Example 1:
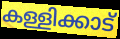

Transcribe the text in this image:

കള്ളിക്കാട്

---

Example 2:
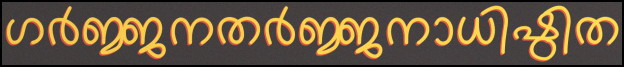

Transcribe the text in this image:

ഗർജ്ജനതർജ്ജനാധിഷ്ഠിത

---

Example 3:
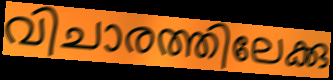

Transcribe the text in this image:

വിചാരത്തിലേക്കു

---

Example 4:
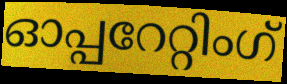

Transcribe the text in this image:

ഓപ്പറേറ്റിംഗ്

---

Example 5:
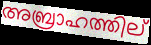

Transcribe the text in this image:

അബ്രാഹത്തില്